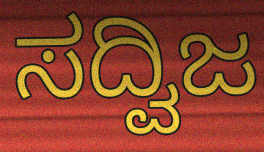
ಸದ್ವಿಜ